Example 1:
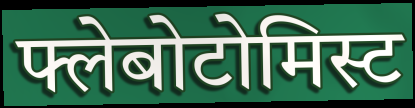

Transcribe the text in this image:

फ्लेबोटोमिस्ट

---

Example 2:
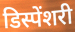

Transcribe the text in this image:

डिस्पेंशरी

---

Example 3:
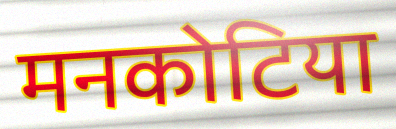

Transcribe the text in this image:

मनकोटिया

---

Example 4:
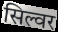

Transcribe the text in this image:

सिल्वर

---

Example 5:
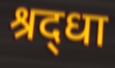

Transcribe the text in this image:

श्रद्धा